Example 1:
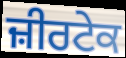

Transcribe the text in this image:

ਜ਼ੀਰਟੇਕ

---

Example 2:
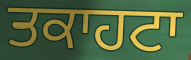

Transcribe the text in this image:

ਤਕਾਹਟਾ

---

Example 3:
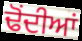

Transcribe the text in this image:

ਢੋਂਦੀਆਂ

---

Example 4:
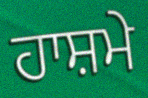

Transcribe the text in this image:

ਹਾਸ਼ਮੇ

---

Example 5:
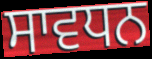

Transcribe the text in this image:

ਸਾਵਧਨ